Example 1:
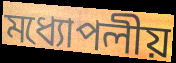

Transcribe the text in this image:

মধ্যোপলীয়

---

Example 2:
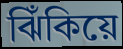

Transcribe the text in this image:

ঝিঁকিয়ে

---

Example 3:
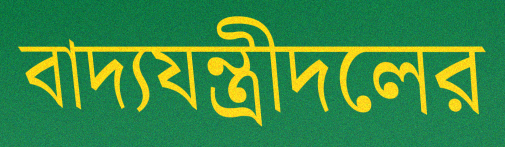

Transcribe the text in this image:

বাদ্যযন্ত্রীদলের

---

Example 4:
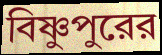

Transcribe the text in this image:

বিষ্ণুপুরের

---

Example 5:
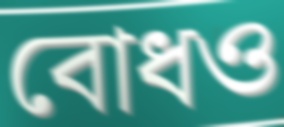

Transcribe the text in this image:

বোধও